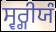
ਸ੍ਵਰ੍ਗੀਯੰ